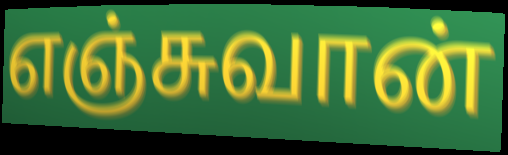
எஞ்சுவான்